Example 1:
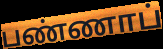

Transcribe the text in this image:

பண்ணாப்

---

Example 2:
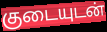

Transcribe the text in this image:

குடையுடன்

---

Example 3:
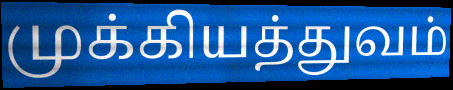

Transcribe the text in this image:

முக்கியத்துவம்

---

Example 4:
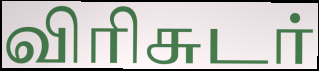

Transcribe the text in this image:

விரிசுடர்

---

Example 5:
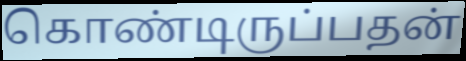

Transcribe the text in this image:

கொண்டிருப்பதன்